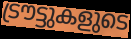
ട്രൗട്ടുകളുടെ